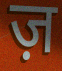
ज़